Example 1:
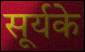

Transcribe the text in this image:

सूर्यके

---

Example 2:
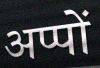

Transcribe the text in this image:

अप्पों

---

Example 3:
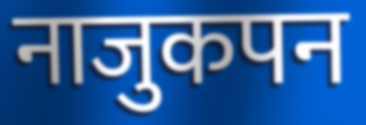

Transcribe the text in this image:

नाजुकपन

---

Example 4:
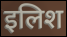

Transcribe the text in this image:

इलिश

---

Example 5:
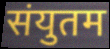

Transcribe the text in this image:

संयुतम